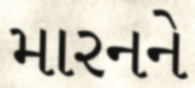
મારનને